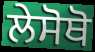
ਲੇਸੋਥੋ